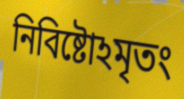
নিবিষ্টোঽমৃতং